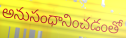
అనుసంధానించడంతో